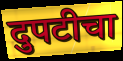
दुपटीचा